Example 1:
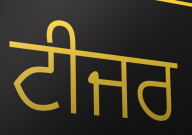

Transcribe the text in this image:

ਟੀਜਰ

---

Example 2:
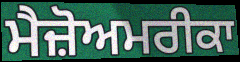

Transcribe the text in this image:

ਮੈਜ਼ੋਅਮਰੀਕਾ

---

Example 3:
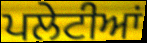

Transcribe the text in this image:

ਪਲੇਟੀਆਂ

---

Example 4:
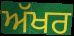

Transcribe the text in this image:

ਅੱਖਰ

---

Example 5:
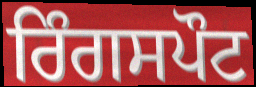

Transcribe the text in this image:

ਰਿੰਗਸਪੌਟ